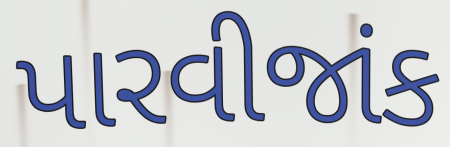
પારવીજાંક